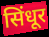
सिंधूर